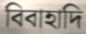
বিবাহাদি